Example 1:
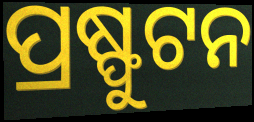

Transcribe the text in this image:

ପ୍ରଷ୍ଫୁଟନ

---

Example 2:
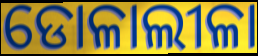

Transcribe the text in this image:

ଡୋଳାଲୀଳା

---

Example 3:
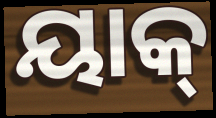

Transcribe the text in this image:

ୟାକ୍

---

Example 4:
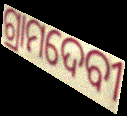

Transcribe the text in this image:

ଗ୍ରାମଦେବୀ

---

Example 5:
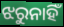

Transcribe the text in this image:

ଝରୁନାହିଁ